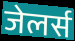
जेलर्स